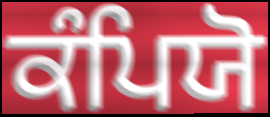
ਕੰਪਿਯੋ